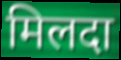
मिलदा